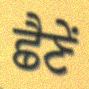
ਛੈਣੇਂ